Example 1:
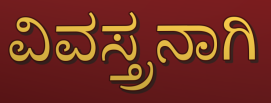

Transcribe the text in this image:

ವಿವಸ್ತ್ರನಾಗಿ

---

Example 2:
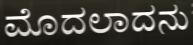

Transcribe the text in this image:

ಮೊದಲಾದನು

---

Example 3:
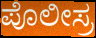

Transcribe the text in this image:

ಪೊಲೀಸ್ರ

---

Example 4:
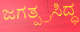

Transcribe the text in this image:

ಜಗತ್ಪ್ರಸಿದ್ಧ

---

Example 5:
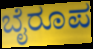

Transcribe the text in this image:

ಬೈರೂಪ